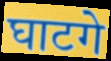
घाटगे